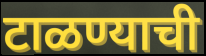
टाळण्याची